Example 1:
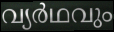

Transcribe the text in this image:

വ്യർഥവും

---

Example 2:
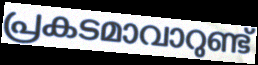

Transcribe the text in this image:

പ്രകടമാവാറുണ്ട്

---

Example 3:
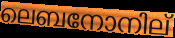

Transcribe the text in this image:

ലെബനോനില്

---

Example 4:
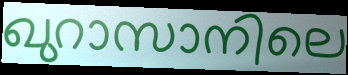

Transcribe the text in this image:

ഖുറാസാനിലെ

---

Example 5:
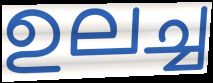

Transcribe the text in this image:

ഉലച്ച